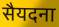
सैयदना